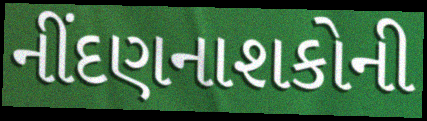
નીંદણનાશકોની